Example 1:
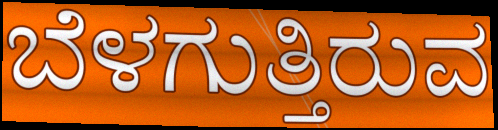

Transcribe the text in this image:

ಬೆಳಗುತ್ತಿರುವ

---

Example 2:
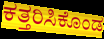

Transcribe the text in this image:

ಕತ್ತರಿಸಿಕೊಂಡ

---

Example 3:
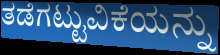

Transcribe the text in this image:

ತಡೆಗಟ್ಟುವಿಕೆಯನ್ನು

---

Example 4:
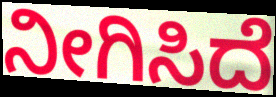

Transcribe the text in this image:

ನೀಗಿಸಿದೆ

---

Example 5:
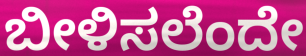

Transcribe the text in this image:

ಬೀಳಿಸಲೆಂದೇ